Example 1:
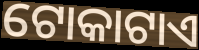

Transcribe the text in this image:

ଟୋକାଟାଏ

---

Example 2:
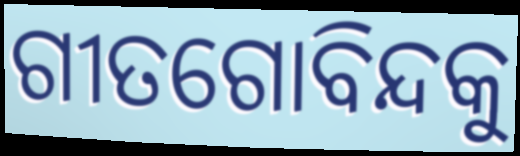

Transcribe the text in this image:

ଗୀତଗୋବିନ୍ଦକୁ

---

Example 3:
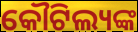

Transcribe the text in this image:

କୌଟିଲ୍ୟଙ୍କ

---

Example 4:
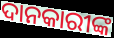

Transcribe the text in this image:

ଦାନକାରୀଙ୍କ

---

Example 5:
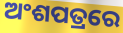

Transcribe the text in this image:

ଅଂଶପତ୍ରରେ